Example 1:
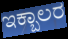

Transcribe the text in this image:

ಇಕ್ಬಾಲರ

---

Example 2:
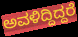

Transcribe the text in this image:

ಅವಳಿದ್ದಿದ್ದರೆ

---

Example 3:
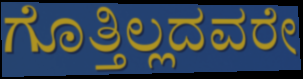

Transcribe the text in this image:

ಗೊತ್ತಿಲ್ಲದವರೇ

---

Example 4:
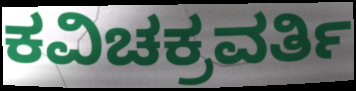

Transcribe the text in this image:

ಕವಿಚಕ್ರವರ್ತಿ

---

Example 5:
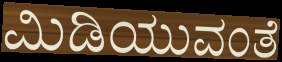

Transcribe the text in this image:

ಮಿಡಿಯುವಂತೆ